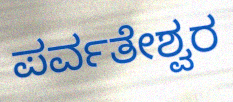
ಪರ್ವತೇಶ್ವರ